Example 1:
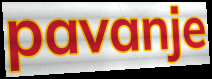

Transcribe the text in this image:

pavanje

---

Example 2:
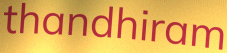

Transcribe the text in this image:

thandhiram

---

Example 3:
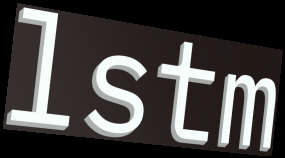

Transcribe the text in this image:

lstm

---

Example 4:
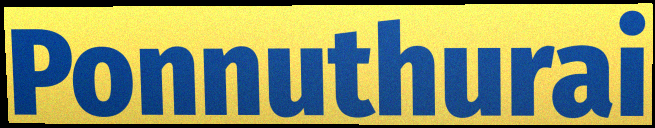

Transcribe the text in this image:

Ponnuthurai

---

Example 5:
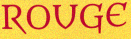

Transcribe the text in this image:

ROUGE